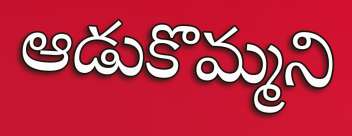
ఆడుకొమ్మని